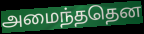
அமைந்ததென